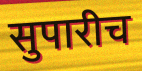
सुपारीच